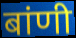
बांणी